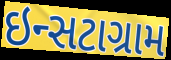
ઇન્સટાગ્રામ